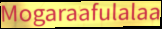
Mogaraafulalaa